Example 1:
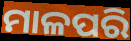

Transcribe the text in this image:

ମାଳପରି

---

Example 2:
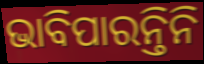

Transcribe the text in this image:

ଭାବିପାରନ୍ତିନି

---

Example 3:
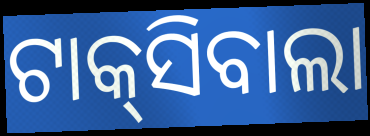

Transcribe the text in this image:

ଟାକ୍‌ସିବାଲା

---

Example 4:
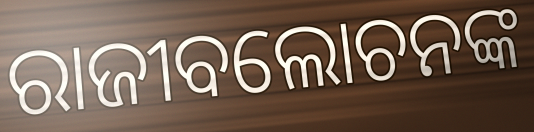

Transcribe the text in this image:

ରାଜୀବଲୋଚନଙ୍କ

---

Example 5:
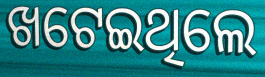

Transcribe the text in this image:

ଖଟେଇଥିଲେ